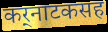
कर्नाटकसह